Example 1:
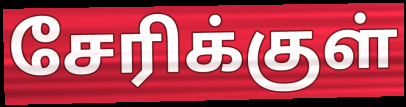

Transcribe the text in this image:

சேரிக்குள்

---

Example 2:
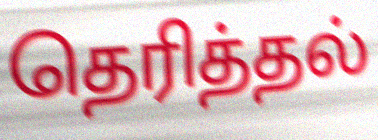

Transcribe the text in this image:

தெரித்தல்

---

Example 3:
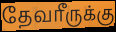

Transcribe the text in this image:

தேவரீருக்கு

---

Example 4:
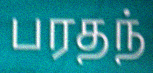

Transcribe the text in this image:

பரதந்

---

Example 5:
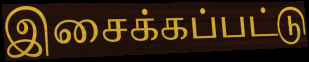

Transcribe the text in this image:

இசைக்கப்பட்டு